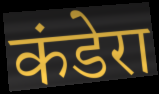
कंडेरा